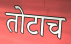
तोटाच